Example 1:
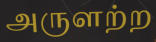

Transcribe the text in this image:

அருளற்ற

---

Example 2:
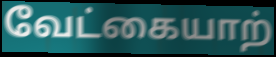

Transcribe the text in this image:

வேட்கையாற்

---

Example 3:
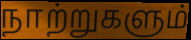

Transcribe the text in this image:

நாற்றுகளும்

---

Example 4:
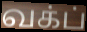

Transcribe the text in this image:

வக்ப்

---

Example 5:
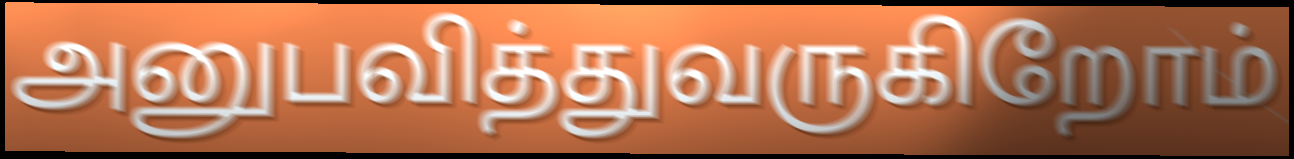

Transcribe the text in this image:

அனுபவித்துவருகிறோம்